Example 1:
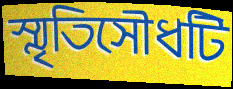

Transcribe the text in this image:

স্মৃতিসৌধটি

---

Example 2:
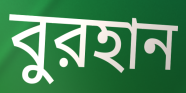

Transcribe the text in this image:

বুরহান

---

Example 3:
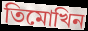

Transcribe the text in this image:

তিমোখিন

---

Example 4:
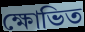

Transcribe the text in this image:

ক্ষোভিত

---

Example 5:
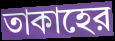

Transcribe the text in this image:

তাকাহের